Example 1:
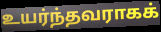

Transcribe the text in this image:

உயர்ந்தவராகக்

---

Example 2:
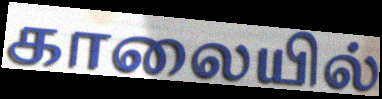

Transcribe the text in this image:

காலையில்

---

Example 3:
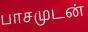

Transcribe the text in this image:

பாசமுடன்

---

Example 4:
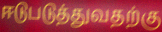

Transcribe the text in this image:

ஈடுபடுத்துவதற்கு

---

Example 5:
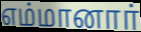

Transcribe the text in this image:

எம்மானார்